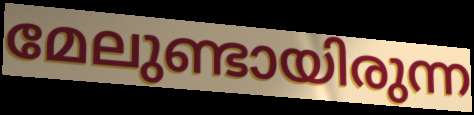
മേലുണ്ടായിരുന്ന